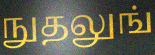
நுதலுங்